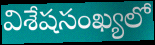
విశేషసంఖ్యలో